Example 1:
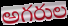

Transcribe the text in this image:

అగరుల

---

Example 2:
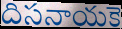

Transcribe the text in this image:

దిసనాయకె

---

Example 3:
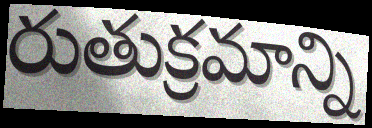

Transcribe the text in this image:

రుతుక్రమాన్ని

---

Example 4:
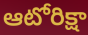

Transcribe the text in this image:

ఆటోరిక్షా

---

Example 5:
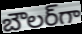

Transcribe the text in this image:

బౌలర్‌గా